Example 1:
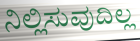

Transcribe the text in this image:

ನಿಲ್ಲಿಸುವುದಿಲ್ಲ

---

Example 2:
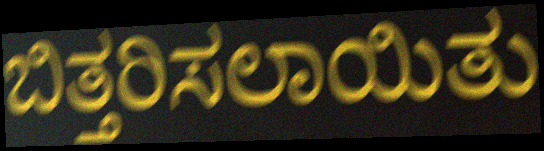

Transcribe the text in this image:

ಬಿತ್ತರಿಸಲಾಯಿತು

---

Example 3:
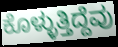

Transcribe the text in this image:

ಕೊಳ್ಳುತ್ತಿದ್ದೆವು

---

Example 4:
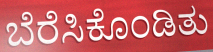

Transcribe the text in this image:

ಬೆರೆಸಿಕೊಂಡಿತು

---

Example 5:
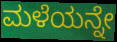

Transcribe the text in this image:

ಮಳೆಯನ್ನೇ